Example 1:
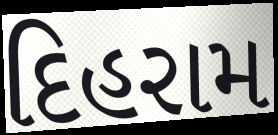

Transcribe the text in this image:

દિહરામ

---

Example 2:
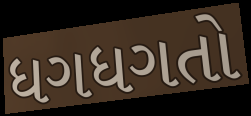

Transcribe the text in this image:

ધગધગતો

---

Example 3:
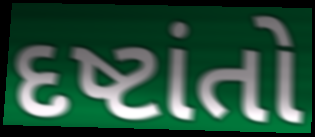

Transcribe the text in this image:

દષ્ટાંતો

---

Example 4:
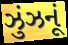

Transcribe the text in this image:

ઝુંઝનૂં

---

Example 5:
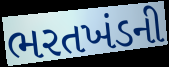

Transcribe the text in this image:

ભરતખંડની